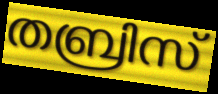
തബ്രിസ്